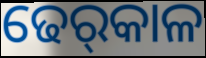
ଢେର୍‌କାଳ